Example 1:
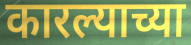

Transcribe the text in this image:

कारल्याच्या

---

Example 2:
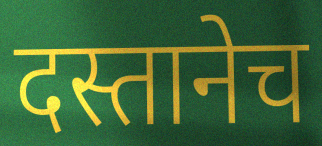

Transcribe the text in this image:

दस्तानेच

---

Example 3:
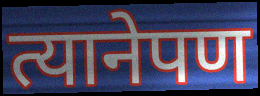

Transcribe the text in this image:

त्यानेपण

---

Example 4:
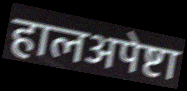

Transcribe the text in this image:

हालअपेष्टा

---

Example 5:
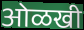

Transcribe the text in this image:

ओळखी